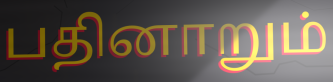
பதினாறும்